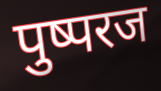
पुष्परज